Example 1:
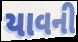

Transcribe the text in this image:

યાવની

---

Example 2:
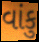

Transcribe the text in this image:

વાંકુ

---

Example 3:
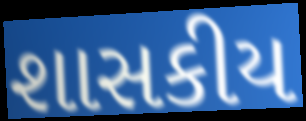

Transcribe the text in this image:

શાસકીય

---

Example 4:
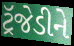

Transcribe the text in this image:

ટ્રૅજેડીને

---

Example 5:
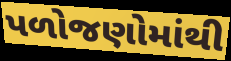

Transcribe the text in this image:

પળોજણોમાંથી